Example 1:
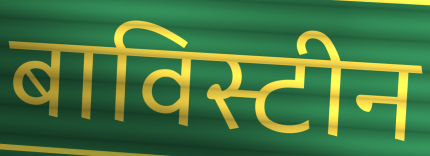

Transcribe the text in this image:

बाविस्टीन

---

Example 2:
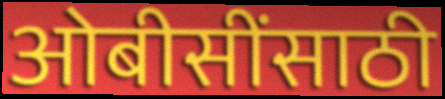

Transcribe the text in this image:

ओबीसींसाठी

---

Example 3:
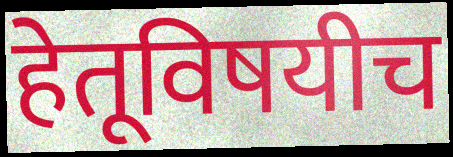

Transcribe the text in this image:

हेतूविषयीच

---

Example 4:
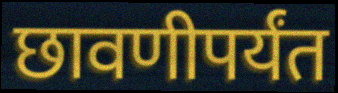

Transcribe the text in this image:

छावणीपर्यंत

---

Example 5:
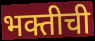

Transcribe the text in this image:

भक्तीची